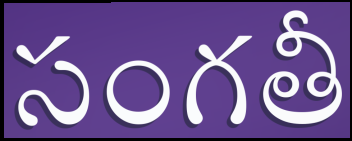
సంగతీ